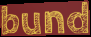
bund